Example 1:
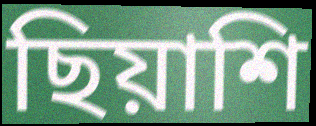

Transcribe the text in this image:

ছিয়াশি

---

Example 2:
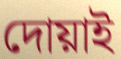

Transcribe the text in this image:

দোয়াই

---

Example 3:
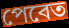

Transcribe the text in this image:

পেবেত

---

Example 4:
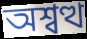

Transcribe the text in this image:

অশ্বত্থ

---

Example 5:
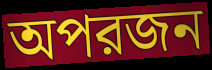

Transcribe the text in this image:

অপরজন